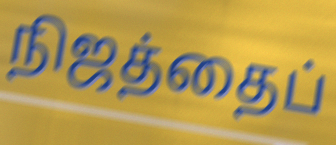
நிஜத்தைப்